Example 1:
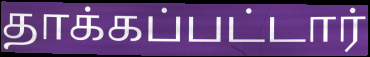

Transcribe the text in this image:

தாக்கப்பட்டார்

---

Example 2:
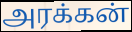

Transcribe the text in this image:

அரக்கன்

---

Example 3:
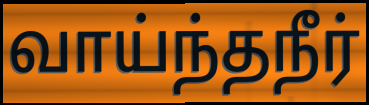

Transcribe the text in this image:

வாய்ந்தநீர்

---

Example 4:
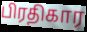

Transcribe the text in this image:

பிரதிகார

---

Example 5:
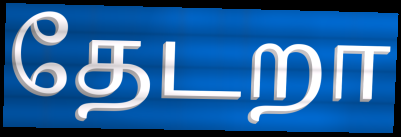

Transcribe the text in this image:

தேடறா